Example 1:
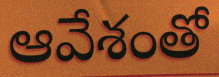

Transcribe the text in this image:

ఆవేశంతో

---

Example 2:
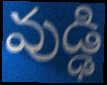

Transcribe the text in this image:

వుడ్ఢి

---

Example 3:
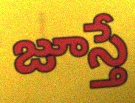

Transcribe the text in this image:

జూస్తే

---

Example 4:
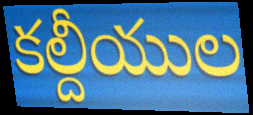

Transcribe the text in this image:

కల్దీయుల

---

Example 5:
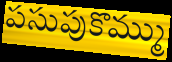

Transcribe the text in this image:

పసుపుకొమ్ము